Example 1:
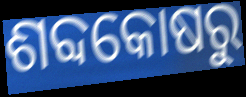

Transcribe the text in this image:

ଶବ୍ଦକୋଷରୁ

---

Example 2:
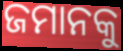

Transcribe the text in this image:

ଜମାନକୁ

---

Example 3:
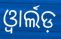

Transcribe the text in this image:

ଓ୍ୱାର୍ଲଡ଼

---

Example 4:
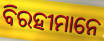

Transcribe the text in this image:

ବିରହୀମାନେ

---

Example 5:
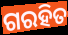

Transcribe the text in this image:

ଗରହିତ